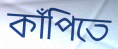
কাঁপিতে